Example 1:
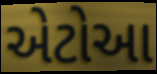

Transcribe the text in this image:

એટોઆ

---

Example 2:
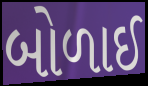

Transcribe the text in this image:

બોળાઈ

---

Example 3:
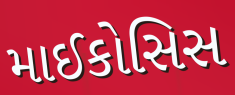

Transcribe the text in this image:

માઈકોસિસ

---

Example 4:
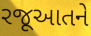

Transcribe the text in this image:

રજૂઆતને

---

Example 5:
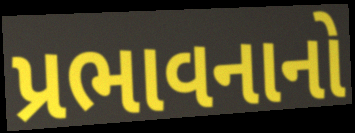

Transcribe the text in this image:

પ્રભાવનાનો